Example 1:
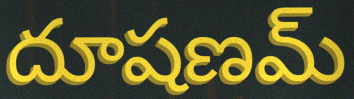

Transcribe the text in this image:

దూషణమ్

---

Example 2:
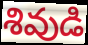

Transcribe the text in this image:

శివుడి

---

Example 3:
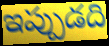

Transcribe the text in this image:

ఇప్పుడది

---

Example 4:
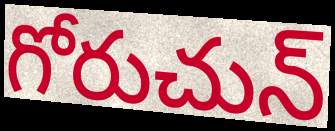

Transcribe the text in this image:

గోరుచున్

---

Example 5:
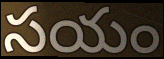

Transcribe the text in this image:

సయం